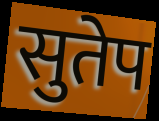
सुतेप